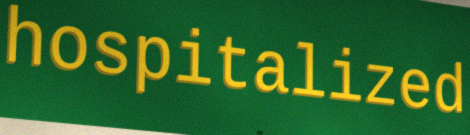
hospitalized